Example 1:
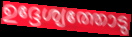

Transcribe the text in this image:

ഉദ്ദേശ്യത്തോടു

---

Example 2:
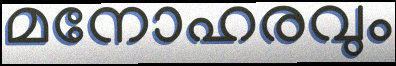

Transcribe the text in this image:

മനോഹരവും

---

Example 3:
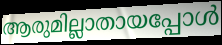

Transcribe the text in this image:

ആരുമില്ലാതായപ്പോൾ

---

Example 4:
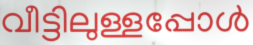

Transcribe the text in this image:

വീട്ടിലുള്ളപ്പോൾ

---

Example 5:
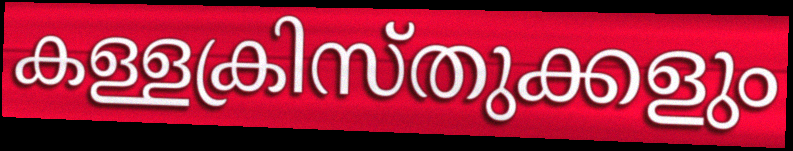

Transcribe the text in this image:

കള്ളക്രിസ്തുക്കളും